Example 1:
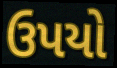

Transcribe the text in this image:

ઉપયો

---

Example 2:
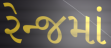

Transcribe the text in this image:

રેન્જમાં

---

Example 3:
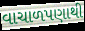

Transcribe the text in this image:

વાચાળપણાથી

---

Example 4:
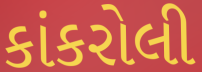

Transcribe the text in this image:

કાંકરોલી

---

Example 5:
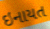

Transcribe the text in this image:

ઇનાયત